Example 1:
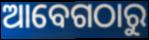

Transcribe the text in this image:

ଆବେଗଠାରୁ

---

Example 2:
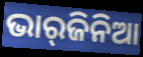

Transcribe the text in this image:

ଭାର୍‌ଜିନିଆ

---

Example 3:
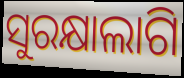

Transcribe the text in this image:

ସୁରକ୍ଷାଲାଗି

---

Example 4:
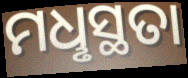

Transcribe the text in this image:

ମଧୢସ୍ଥତା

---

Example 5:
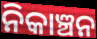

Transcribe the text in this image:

ନିକାଞ୍ଚନ